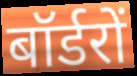
बॉर्डरों